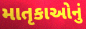
માતૃકાઓનું